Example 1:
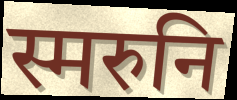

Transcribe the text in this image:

स्मरुनि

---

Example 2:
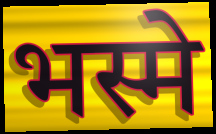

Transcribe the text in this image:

भस्मे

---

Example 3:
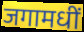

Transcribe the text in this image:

जगामधीं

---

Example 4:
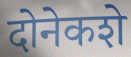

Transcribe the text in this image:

दोनेकशे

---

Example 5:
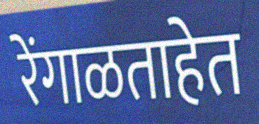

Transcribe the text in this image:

रेंगाळताहेत